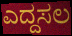
ಎದ್ದಸಲ